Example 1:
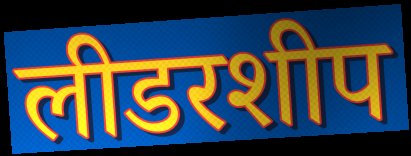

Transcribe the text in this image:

लीडरशीप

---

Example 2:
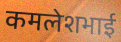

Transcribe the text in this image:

कमलेशभाई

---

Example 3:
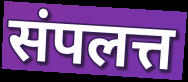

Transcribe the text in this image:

संपलत्त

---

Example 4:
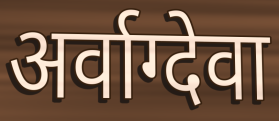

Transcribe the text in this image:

अर्वाग्देवा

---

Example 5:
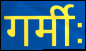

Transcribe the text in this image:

गर्मीः